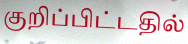
குறிப்பிட்டதில்